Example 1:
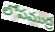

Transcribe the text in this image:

లోపముద్ర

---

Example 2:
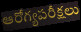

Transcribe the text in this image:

ఆరోగ్యపరీక్షలు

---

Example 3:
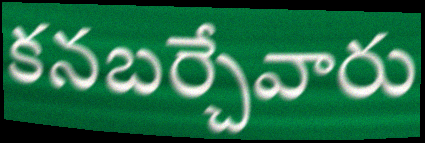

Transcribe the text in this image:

కనబర్చేవారు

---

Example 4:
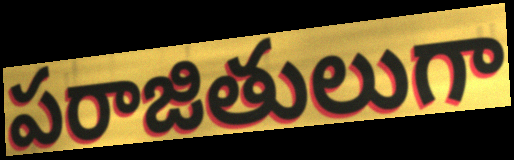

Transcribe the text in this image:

పరాజితులుగా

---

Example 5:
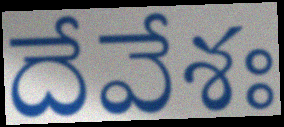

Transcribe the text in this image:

దేవేశః